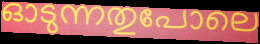
ഓടുന്നതുപോലെ